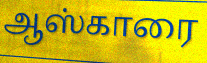
ஆஸ்காரை